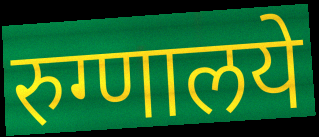
रुग्णालये